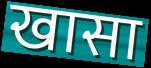
खासा